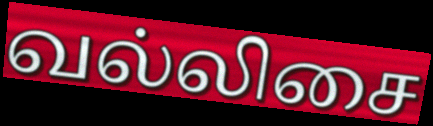
வல்லிசை